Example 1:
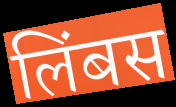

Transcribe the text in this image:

लिंबस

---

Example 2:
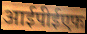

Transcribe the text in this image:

आईपीईएफ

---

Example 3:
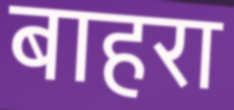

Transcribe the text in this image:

बाहरा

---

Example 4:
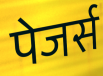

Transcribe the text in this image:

पेजर्स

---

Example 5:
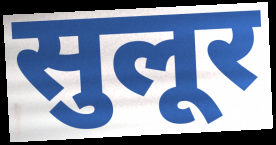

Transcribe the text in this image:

सुलूर